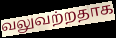
வலுவற்றதாக